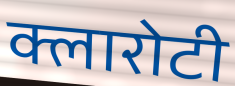
क्लारोटी